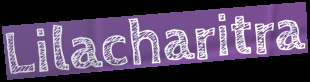
Lilacharitra